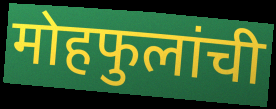
मोहफुलांची